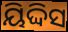
ୟିଦ୍ଦିସ